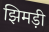
झिमड़ी